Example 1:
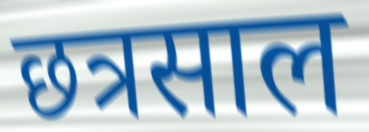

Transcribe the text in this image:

छत्रसाल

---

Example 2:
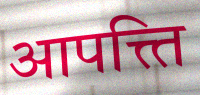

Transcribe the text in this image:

आपत्त्ति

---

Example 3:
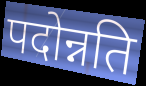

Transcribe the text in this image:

पदोन्नति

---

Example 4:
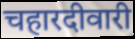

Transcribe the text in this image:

चहारदीवारी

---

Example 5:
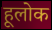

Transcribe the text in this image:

हूलोक